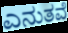
ಎನುತವೆ